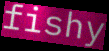
fishy